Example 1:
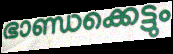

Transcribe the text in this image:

ഭാണ്ഡക്കെട്ടും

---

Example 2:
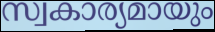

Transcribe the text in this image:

സ്വകാര്യമായും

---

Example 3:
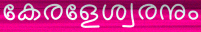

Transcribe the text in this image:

കേരളേശ്വരനും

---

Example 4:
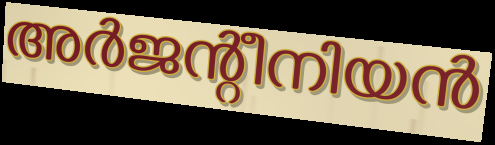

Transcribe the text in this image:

അർജന്റീനിയൻ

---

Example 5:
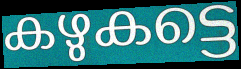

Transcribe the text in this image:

കഴുകട്ടെ